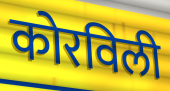
कोरविली